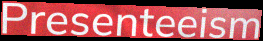
Presenteeism